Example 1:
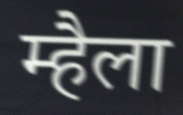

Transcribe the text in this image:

म्हैला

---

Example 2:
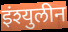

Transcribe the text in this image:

इंश्युलीन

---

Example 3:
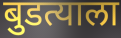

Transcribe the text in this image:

बुडत्याला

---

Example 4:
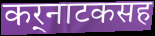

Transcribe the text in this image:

कर्नाटकसह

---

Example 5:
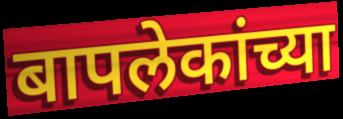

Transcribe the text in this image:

बापलेकांच्या